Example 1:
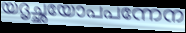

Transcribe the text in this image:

യദൃച്ഛയോപപന്നേന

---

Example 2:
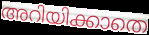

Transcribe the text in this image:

അറിയിക്കാതെ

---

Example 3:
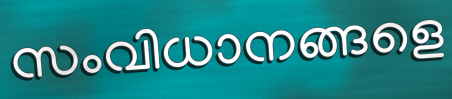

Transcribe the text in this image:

സംവിധാനങ്ങളെ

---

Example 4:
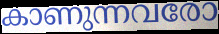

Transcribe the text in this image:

കാണുന്നവരോ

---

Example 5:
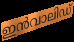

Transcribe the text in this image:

ഇൻവാലിഡ്